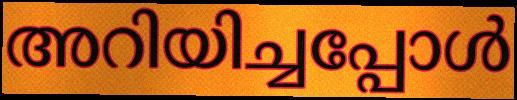
അറിയിച്ചപ്പോൾ